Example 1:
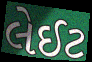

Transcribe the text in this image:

લેઈટ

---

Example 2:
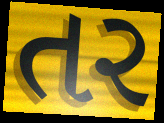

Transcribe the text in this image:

તર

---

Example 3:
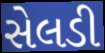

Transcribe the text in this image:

સેલડી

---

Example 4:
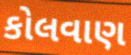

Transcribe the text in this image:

કોલવાણ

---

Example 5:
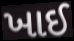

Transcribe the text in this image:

ખાઈ